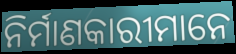
ନିର୍ମାଣକାରୀମାନେ